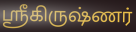
ஶ்ரீகிருஷ்ணர்